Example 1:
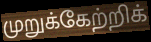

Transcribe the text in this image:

முறுக்கேற்றிக்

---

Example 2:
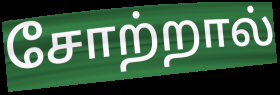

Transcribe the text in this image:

சோற்றால்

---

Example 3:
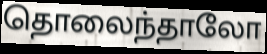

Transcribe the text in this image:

தொலைந்தாலோ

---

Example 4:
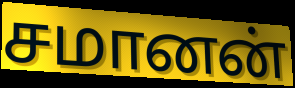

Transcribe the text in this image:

சமானன்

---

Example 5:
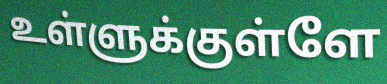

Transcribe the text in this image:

உள்ளுக்குள்ளே